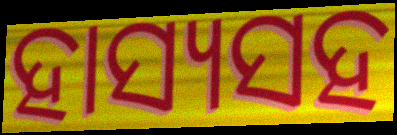
ହାସ୍ୟସହ